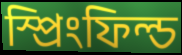
স্প্রিংফিল্ড